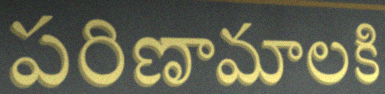
పరిణామాలకి